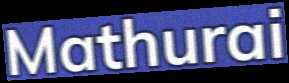
Mathurai